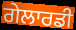
ਗੇਲਾਰਡੀ